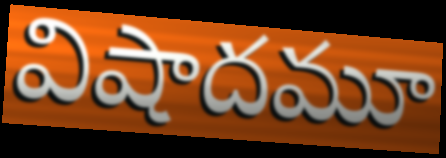
విషాదమూ